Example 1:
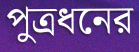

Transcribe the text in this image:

পুত্রধনের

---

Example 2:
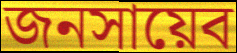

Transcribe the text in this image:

জনসায়েব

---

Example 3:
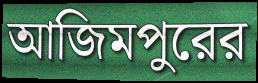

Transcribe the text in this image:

আজিমপুরের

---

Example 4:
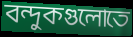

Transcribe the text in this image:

বন্দুকগুলোতে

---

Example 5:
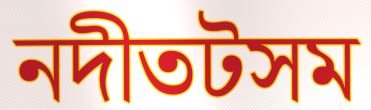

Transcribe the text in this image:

নদীতটসম